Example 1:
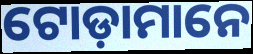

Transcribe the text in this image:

ଟୋଡ଼ାମାନେ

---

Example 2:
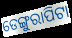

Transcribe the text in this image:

ଡେଙ୍ଗୁରାପିଟା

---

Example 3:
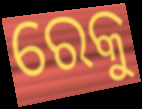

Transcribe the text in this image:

ରେକୁ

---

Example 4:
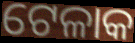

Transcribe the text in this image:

ଟେଳାକ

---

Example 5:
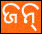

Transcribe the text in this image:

ଜନ୍